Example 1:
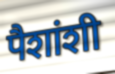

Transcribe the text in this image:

पैशांशी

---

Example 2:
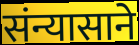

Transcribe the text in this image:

संन्यासाने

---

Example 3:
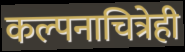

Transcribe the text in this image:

कल्पनाचित्रेही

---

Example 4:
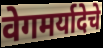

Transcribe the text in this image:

वेगमर्यादेचे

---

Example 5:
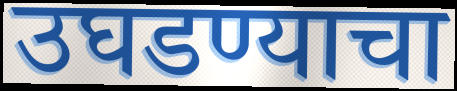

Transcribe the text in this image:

उघडण्याचा